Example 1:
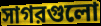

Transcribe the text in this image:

সাগরগুলো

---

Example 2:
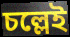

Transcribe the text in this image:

চল্লেই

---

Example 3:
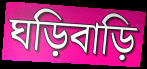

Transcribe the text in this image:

ঘড়িবাড়ি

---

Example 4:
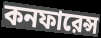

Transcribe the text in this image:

কনফারেন্স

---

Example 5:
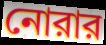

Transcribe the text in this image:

নোরার